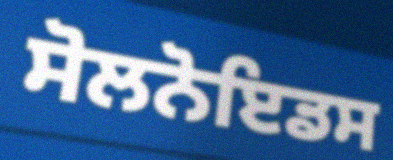
ਸੋਲਨੋਇਡਸ